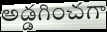
అడ్డగించగా